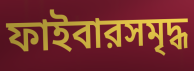
ফাইবারসমৃদ্ধ